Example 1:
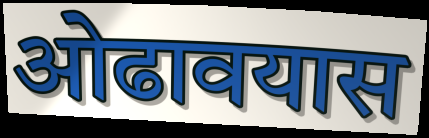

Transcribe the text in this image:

ओढावयास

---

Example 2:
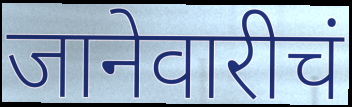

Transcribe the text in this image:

जानेवारीचं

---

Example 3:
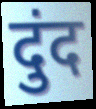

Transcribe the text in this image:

दुंद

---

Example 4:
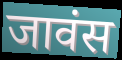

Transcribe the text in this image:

जावंस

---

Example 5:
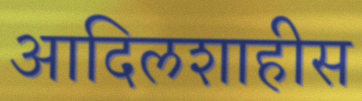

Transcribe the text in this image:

आदिलशाहीस